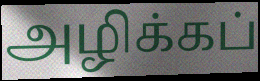
அழிக்கப்